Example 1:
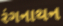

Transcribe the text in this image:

રંગનાથન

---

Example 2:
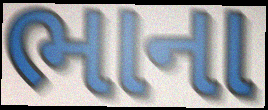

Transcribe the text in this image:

ભાના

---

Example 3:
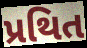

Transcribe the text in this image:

પ્રથિત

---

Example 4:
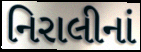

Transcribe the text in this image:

નિરાલીનાં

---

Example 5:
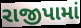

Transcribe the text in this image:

રાજીપામાં